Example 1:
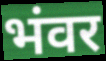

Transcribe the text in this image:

भंवर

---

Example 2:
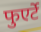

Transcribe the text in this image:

फुएर्टे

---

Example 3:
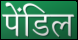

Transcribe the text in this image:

पेंडिल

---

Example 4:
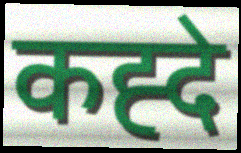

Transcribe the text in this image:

कह्दे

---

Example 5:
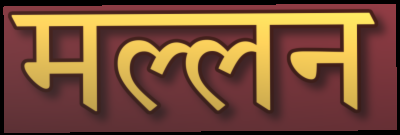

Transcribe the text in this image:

मल्लन